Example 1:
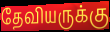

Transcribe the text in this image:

தேவியருக்கு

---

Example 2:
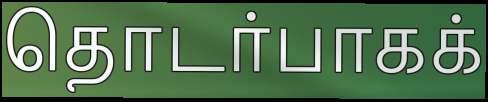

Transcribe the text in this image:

தொடர்பாகக்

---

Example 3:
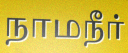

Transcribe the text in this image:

நாமநீர்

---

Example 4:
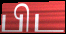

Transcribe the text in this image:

பிட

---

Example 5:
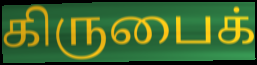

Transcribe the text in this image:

கிருபைக்